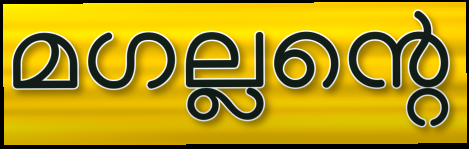
മഗല്ലന്റെ